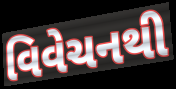
વિવેચનથી